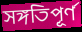
সঙ্গতিপূর্ণ